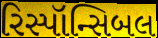
રિસ્પૉન્સિબલ